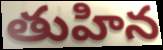
తుహిన